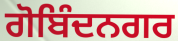
ਗੋਬਿੰਦਨਗਰ